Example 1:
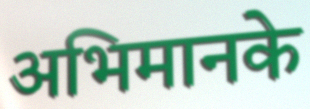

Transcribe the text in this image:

अभिमानके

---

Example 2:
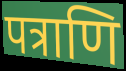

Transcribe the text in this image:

पत्राणि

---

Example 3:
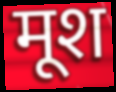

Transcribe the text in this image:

मूश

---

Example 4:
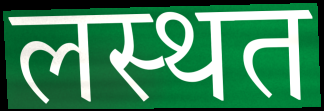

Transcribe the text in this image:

लस्थत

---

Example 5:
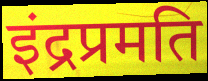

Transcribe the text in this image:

इंद्रप्रमति